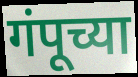
गंपूच्या